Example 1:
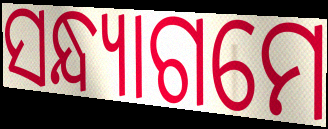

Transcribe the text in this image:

ସନ୍ଧ୍ୟାଗମେ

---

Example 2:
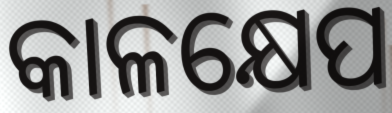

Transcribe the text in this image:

କାଳକ୍ଷେପ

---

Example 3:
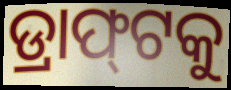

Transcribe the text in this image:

ଡ୍ରାଫ୍‌ଟକୁ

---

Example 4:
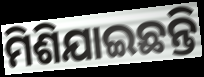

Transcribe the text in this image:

ମିଶିଯାଇଛନ୍ତି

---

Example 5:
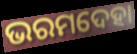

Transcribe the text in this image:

ଭରମଦେହା